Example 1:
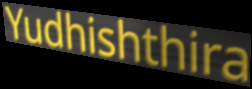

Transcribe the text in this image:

Yudhishthira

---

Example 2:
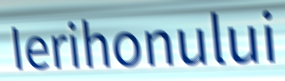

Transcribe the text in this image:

Ierihonului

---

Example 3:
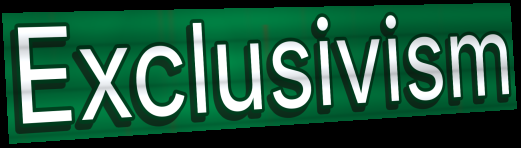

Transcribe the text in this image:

Exclusivism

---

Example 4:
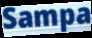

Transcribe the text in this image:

Sampa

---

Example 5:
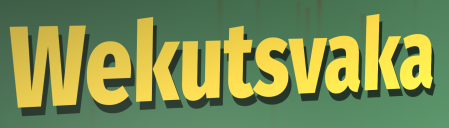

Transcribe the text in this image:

Wekutsvaka